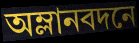
অম্লানবদনে